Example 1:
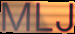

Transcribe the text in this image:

MLJ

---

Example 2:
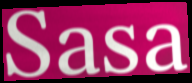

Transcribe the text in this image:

Sasa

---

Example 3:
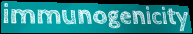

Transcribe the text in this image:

immunogenicity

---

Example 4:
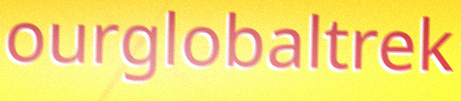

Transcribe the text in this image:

ourglobaltrek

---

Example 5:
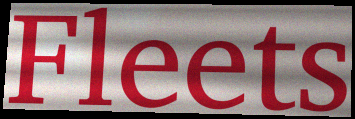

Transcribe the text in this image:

Fleets